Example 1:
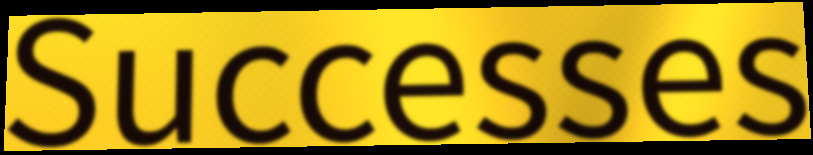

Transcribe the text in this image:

Successes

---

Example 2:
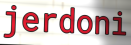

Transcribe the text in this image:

jerdoni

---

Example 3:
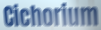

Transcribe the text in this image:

Cichorium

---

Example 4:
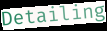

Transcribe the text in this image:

Detailing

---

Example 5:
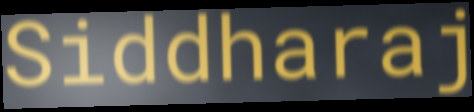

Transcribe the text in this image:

Siddharaj